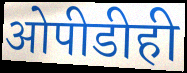
ओपीडीही